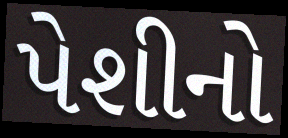
પેશીનો